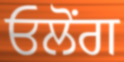
ਓਲੋਂਗ